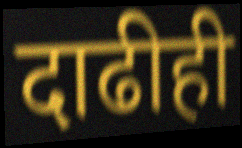
दाढीही